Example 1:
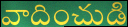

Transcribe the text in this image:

వాదించుడి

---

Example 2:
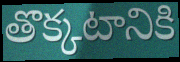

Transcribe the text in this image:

తొక్కటానికి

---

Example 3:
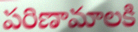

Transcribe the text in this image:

పరిణామాలకి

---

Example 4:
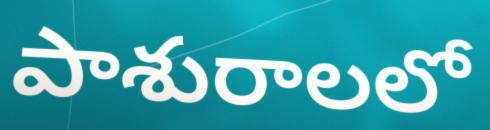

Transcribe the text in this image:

పాశురాలలో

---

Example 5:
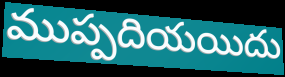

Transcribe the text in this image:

ముప్పదియయిదు